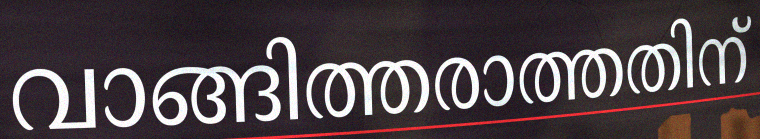
വാങ്ങിത്തരാത്തതിന്